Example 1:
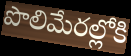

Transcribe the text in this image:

పొలిమేరల్లోకి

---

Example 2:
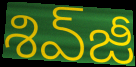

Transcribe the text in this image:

శివ్‌జీ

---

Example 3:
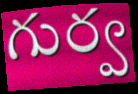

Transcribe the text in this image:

గుర్వ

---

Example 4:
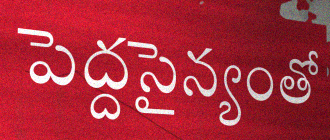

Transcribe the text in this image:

పెద్దసైన్యంతో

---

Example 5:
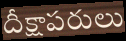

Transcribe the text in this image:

దీక్షాపరులు